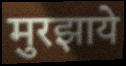
मुरझाये